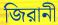
জিরানী